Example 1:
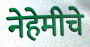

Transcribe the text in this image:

नेहेमीचे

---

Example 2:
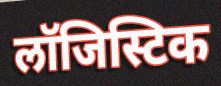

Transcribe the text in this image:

लॉजिस्टिक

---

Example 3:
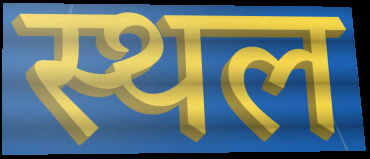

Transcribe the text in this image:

स्थल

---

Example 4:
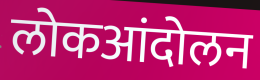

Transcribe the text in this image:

लोकआंदोलन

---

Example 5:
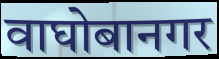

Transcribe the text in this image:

वाघोबानगर